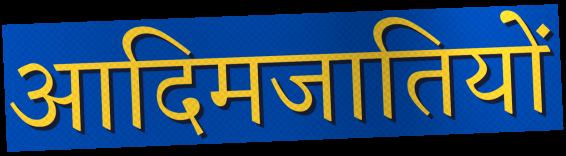
आदिमजातियों